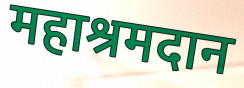
महाश्रमदान